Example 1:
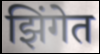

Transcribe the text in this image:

झिंगेत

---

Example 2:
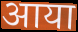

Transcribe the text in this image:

आया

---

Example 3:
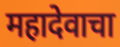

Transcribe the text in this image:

महादेवाचा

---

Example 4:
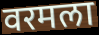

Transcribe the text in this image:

वरमला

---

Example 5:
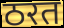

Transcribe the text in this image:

ठरत